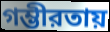
গম্ভীরতায়